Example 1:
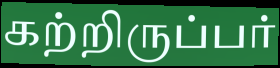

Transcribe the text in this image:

கற்றிருப்பர்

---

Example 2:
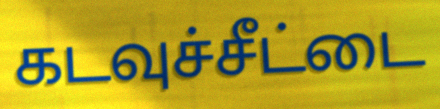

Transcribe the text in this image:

கடவுச்சீட்டை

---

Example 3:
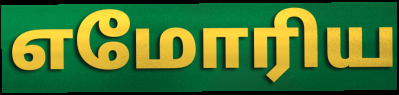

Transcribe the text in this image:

எமோரிய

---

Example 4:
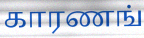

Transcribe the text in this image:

காரணங்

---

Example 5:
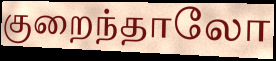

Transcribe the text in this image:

குறைந்தாலோ